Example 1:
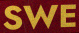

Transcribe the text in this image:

SWE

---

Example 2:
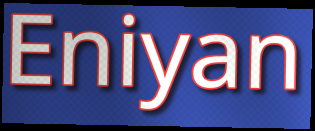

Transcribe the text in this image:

Eniyan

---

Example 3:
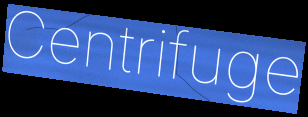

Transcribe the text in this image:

Centrifuge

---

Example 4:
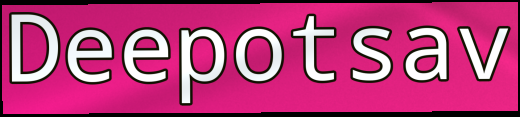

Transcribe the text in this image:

Deepotsav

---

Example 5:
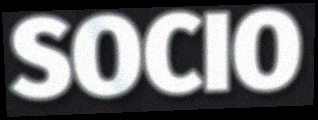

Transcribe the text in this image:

SOCIO